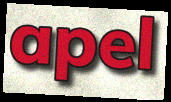
apel